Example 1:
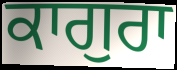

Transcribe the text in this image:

ਕਾਗੁਰਾ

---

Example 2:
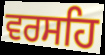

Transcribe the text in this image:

ਵਰਸਹਿ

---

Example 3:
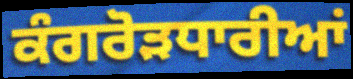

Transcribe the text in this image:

ਕੰਗਰੋੜਧਾਰੀਆਂ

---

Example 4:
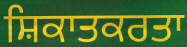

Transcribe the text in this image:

ਸ਼ਿਕਾਤਕਰਤਾ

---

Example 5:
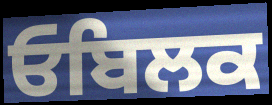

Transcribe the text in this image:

ਓਬਿਲਕ